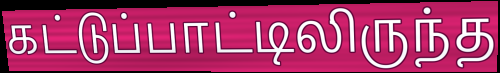
கட்டுப்பாட்டிலிருந்த